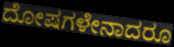
ದೋಷಗಳೇನಾದರೂ